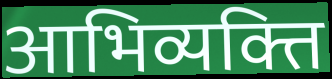
आभिव्यक्ति